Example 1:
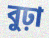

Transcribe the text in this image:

বুঢ়া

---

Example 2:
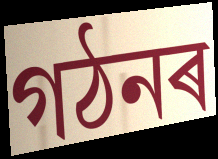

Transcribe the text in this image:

গঠনৰ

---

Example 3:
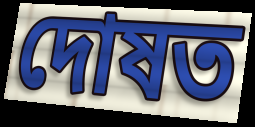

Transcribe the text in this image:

দোষত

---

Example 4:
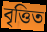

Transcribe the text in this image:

বৃত্তিত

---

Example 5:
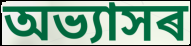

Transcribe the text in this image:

অভ্যাসৰ